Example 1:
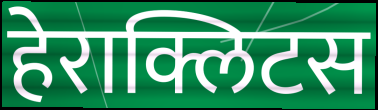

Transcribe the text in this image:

हेराक्लिटस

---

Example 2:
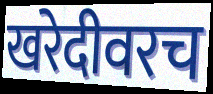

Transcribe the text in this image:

खरेदीवरच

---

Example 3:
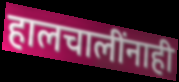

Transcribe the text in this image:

हालचालींनाही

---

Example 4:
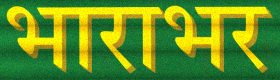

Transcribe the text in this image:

भाराभर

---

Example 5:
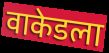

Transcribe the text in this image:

वाकेडला